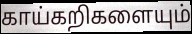
காய்கறிகளையும்